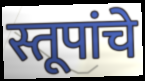
स्तूपांचे